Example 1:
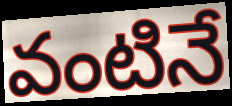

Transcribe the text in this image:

వంటినే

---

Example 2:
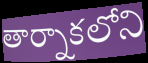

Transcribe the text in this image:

తార్నాకలోని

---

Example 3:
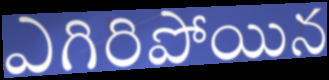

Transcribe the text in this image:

ఎగిరిపోయిన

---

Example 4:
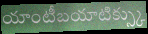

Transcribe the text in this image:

యాంటీబయాటిక్స్కు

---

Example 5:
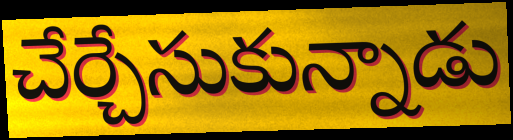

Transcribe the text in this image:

చేర్చేసుకున్నాడు